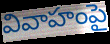
వివాహంపై